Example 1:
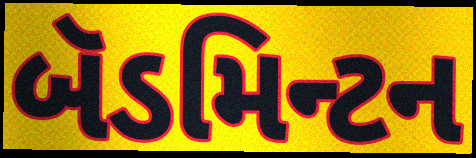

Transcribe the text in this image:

બૅડમિન્ટન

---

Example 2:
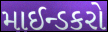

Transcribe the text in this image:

માઈન્ડકરો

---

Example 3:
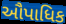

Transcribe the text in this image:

ઔપાધિક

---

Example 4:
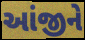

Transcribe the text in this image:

આંજીને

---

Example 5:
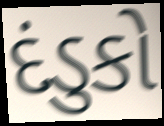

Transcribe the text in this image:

દંડુકો